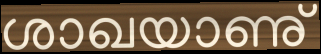
ശാഖയാണു്